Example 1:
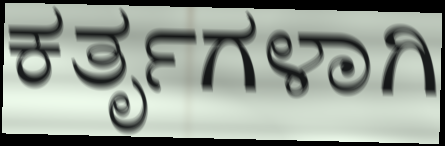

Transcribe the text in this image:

ಕರ್ತೃಗಳಾಗಿ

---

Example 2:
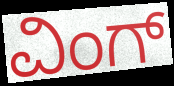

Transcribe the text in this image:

ವಿಂಗ್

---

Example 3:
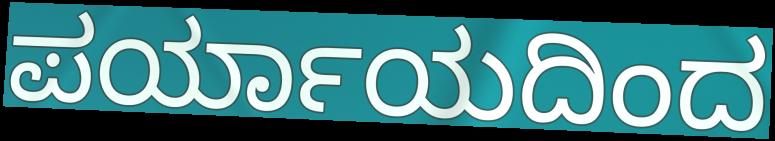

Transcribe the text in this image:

ಪರ್ಯಾಯದಿಂದ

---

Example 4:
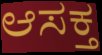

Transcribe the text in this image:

ಆಸಕ್ತ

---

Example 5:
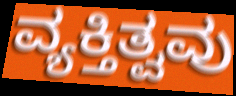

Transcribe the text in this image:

ವ್ಯಕ್ತಿತ್ವವು